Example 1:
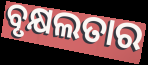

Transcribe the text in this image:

ବୃକ୍ଷଲତାର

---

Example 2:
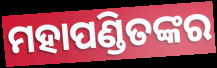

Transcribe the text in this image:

ମହାପଣ୍ଡିତଙ୍କର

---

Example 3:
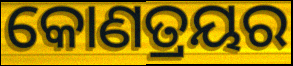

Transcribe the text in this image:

କୋଣତ୍ରୟର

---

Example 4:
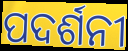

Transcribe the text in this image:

ପଦର୍ଶନୀ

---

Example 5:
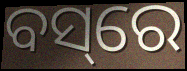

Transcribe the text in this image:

ବସ୍‌ରେ